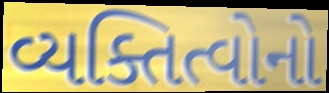
વ્યક્તિત્વોનો